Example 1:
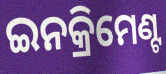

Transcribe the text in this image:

ଇନକ୍ରିମେଣ୍ଟ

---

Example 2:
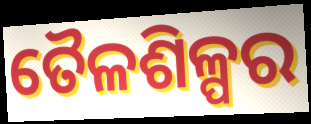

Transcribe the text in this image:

ତୈଳଶିଳ୍ପର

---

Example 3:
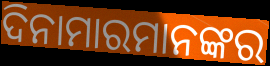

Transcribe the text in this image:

ଦିନାମାରମାନଙ୍କର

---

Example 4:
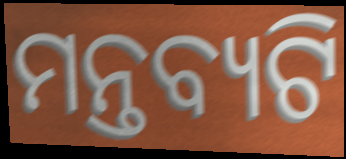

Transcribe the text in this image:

ମନ୍ତବ୍ୟଟି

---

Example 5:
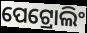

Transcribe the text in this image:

ପେଟ୍ରୋଲିଂ